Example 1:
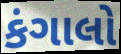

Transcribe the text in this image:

કંગાલો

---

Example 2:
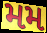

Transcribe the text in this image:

મમ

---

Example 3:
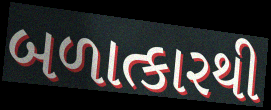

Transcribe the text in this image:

બળાત્કારથી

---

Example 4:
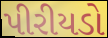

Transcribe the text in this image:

પીરીયડો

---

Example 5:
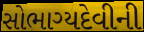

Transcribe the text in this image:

સોભાગ્યદેવીની